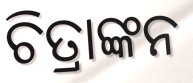
ଚିତ୍ରାଙ୍କନ